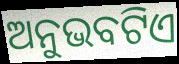
ଅନୁଭବଟିଏ